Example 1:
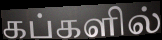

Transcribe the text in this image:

கப்களில்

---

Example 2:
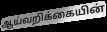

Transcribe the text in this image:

ஆய்வறிக்கையின்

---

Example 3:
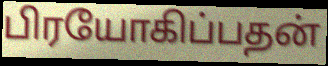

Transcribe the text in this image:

பிரயோகிப்பதன்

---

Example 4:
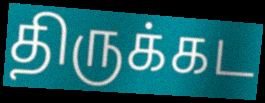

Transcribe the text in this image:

திருக்கட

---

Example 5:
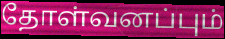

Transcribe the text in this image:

தோள்வனப்பும்